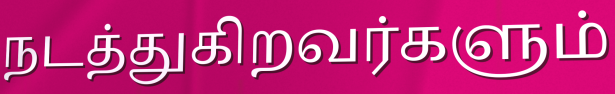
நடத்துகிறவர்களும்